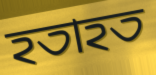
হতাহত